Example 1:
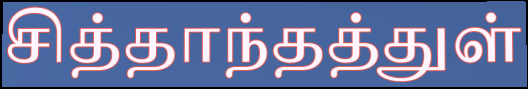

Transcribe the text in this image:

சித்தாந்தத்துள்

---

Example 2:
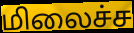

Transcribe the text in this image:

மிலைச்ச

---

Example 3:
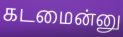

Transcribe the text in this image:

கடமைன்னு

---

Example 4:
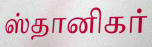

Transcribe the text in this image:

ஸ்தானிகர்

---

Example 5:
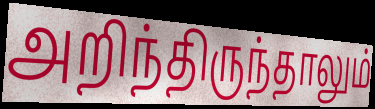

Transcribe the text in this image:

அறிந்திருந்தாலும்